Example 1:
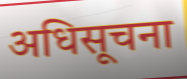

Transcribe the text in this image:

अधिसूचना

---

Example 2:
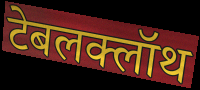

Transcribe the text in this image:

टेबलक्लॉथ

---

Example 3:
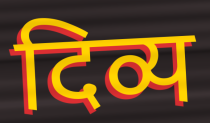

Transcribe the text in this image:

दिव्य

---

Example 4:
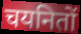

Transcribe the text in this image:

चयनितों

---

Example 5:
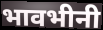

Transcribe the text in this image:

भावभीनी